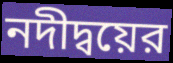
নদীদ্বয়ের